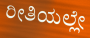
ರೀತಿಯಲ್ಲೇ